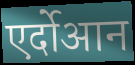
एर्दोआन